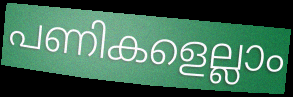
പണികളെല്ലാം